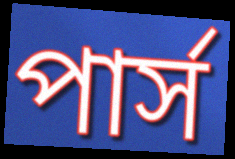
পার্স